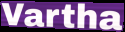
Vartha